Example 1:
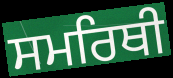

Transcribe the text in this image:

ਸਮਰਿਥੀ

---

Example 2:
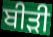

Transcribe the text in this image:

ਬੀਡ਼ੀ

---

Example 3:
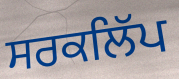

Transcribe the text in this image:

ਸਰਕਲਿੱਪ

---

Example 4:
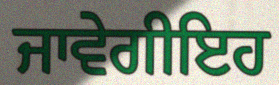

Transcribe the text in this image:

ਜਾਵੇਗੀਇਹ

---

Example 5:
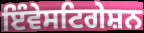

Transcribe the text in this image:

ਇੰਵੇਸਟਿਗੇਸ਼ਨ